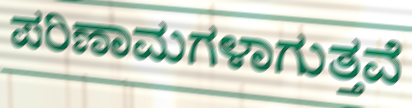
ಪರಿಣಾಮಗಳಾಗುತ್ತವೆ